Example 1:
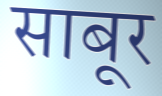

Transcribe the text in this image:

साबूर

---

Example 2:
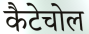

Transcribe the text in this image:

कैटेचोल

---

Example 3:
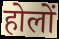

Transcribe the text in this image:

होलों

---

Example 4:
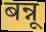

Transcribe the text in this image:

बन्नू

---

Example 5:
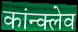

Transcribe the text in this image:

कांन्क्लेव